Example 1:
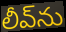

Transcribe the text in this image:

లీవ్‌ను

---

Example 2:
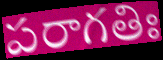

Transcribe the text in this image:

పరాగతిః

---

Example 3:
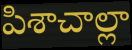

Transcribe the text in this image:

పిశాచాల్లా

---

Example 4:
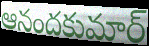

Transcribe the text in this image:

ఆనందకుమార్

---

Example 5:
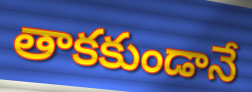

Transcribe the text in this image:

తాకకుండానే